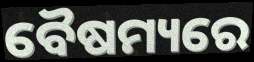
ବୈଷମ୍ୟରେ